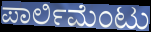
ಪಾರ್ಲಿಮೆಂಟು